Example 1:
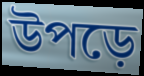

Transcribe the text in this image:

উপড়ে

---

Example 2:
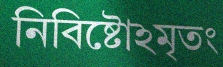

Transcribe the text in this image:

নিবিষ্টোঽমৃতং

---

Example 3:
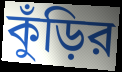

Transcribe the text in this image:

কুঁড়ির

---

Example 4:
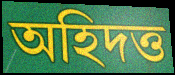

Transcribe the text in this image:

অহিদত্ত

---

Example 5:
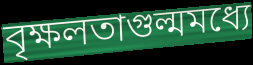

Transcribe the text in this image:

বৃক্ষলতাগুল্মমধ্যে